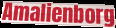
Amalienborg